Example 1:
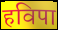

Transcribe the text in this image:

हविपा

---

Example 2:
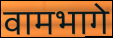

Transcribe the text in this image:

वामभागे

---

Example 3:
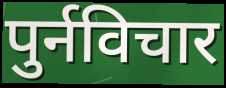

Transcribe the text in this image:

पुर्नविचार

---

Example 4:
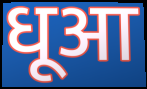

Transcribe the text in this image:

धूआ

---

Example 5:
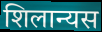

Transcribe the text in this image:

शिलान्यस